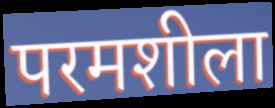
परमशीला